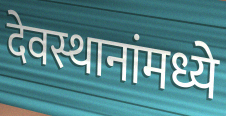
देवस्थानांमध्ये